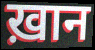
ख़ान